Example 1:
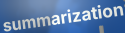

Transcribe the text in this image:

summarization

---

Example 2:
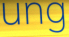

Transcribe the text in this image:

ung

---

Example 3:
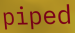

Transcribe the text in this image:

piped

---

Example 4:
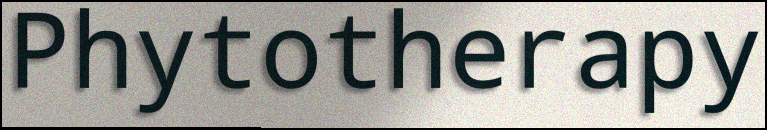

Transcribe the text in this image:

Phytotherapy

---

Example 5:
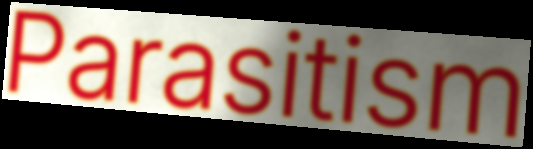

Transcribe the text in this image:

Parasitism